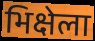
भिक्षेला